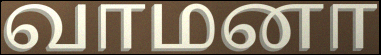
வாமனா